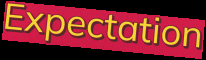
Expectation